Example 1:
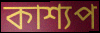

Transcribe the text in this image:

কাশ্যপ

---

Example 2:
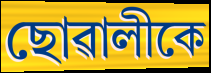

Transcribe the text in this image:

ছোৱালীকে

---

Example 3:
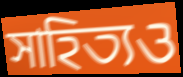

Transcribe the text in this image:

সাহিত্যও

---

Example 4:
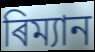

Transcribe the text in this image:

ৰিম্যান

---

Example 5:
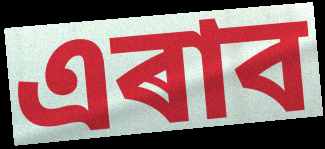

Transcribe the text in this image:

এৰাব